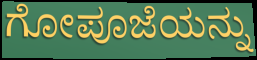
ಗೋಪೂಜೆಯನ್ನು